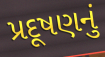
પ્રદૂષણનું